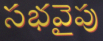
సభవైపు